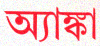
অ্যাঙ্কা